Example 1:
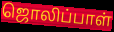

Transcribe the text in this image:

ஜொலிப்பாள்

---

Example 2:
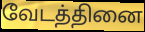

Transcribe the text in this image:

வேடத்தினை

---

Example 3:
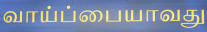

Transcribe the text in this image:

வாய்ப்பையாவது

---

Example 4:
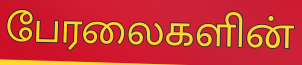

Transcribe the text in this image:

பேரலைகளின்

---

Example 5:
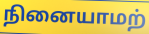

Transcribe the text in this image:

நினையாமற்